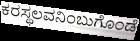
ಕರಸ್ಥಲವನಿಂಬುಗೊಂಡೆ